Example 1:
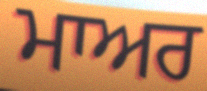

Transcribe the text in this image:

ਮਾਅਰ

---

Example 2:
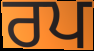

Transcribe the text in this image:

ਰਪ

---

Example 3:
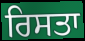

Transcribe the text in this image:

ਰਿਸਤਾ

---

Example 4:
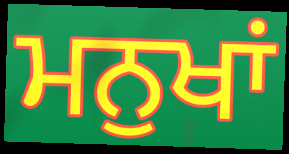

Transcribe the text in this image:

ਮਨੁਖਾਂ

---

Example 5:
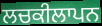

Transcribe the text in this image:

ਲਚਕੀਲਾਪਨ